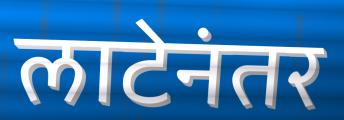
लाटेनंतर